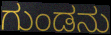
ಗುಂಡನು